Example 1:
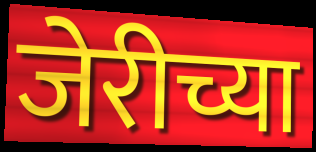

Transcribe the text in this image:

जेरीच्या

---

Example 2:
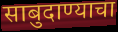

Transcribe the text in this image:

साबुदाण्याचा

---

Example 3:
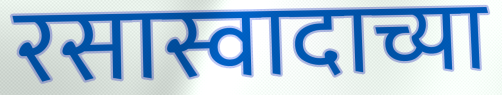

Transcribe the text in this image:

रसास्वादाच्या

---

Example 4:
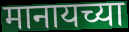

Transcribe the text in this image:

मानायच्या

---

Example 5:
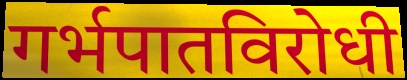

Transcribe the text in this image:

गर्भपातविरोधी